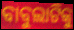
ବାବୁଲାଟିକୁ